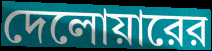
দেলোয়ারের